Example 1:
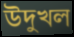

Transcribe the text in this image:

উদুখল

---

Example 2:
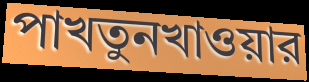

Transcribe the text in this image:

পাখতুনখাওয়ার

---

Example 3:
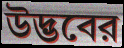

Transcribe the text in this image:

উদ্ভবের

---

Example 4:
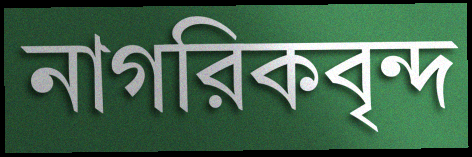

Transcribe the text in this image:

নাগরিকবৃন্দ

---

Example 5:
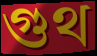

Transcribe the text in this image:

গুথ